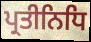
ਪ੍ਰਤੀਨਿਧਿ